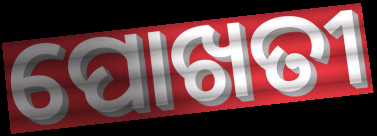
ପୋଖତୀ